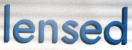
lensed